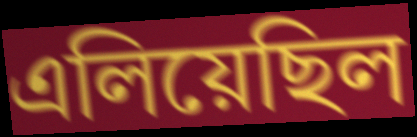
এলিয়েছিল